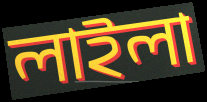
লাইলা